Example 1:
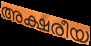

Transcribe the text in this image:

അക്ഷരീയ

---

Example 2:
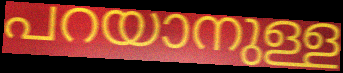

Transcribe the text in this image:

പറയാനുള്ള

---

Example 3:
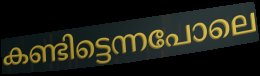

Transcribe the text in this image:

കണ്ടിട്ടെന്നപോലെ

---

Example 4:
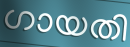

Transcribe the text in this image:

ഗായതി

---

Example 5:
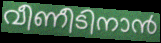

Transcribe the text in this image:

വീണീടിനാൻ